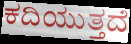
ಕದಿಯುತ್ತದೆ